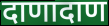
दाणादाण